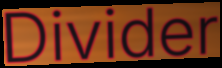
Divider